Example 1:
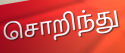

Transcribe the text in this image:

சொறிந்து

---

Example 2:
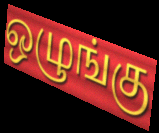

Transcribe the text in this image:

ஒழுங்கு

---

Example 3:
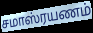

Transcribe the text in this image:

சமாஸ்ரயணம்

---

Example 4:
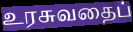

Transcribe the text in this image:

உரசுவதைப்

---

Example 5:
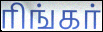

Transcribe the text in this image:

ரிங்கர்